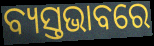
ବ୍ୟସ୍ତଭାବରେ